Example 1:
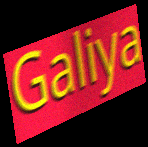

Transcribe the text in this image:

Galiya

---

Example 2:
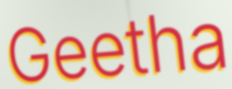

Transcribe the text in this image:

Geetha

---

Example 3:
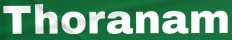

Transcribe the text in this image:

Thoranam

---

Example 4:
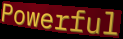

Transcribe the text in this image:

Powerful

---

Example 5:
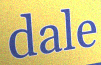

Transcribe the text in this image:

dale